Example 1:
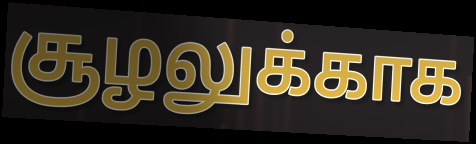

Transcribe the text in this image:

சூழலுக்காக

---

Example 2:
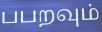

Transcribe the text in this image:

பபறவும்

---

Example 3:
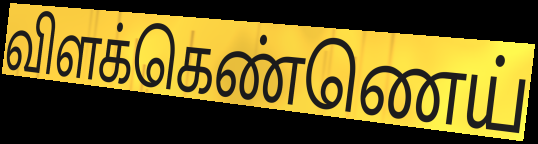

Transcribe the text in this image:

விளக்கெண்ணெய்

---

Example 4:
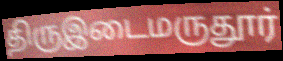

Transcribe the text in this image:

திருஇடைமருதூர்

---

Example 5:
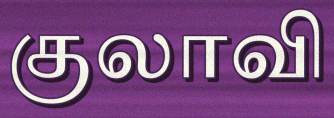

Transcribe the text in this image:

குலாவி